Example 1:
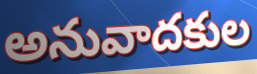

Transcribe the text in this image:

అనువాదకుల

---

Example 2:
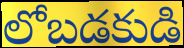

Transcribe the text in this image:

లోబడకుడి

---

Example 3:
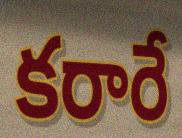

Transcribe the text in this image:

కరారే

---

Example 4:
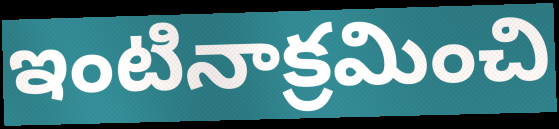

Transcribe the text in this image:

ఇంటినాక్రమించి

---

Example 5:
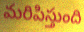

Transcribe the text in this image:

మరిపిస్తుంది